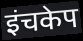
इंचकेप